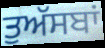
ਤੁਅੱਸਬਾਂ